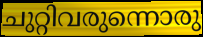
ചുറ്റിവരുന്നൊരു